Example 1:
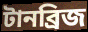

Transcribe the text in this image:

টানব্রিজ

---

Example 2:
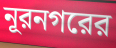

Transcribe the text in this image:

নূরনগরের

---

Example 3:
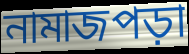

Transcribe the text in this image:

নামাজপড়া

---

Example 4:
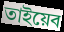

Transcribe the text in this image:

তাইয়েব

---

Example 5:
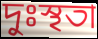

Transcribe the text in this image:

দুঃস্থতা